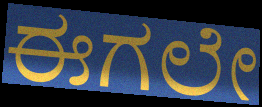
ಈಗಲೇ